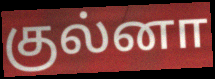
குல்னா